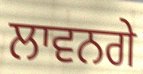
ਲਾਵਨਗੇ